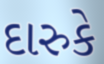
દારુકે